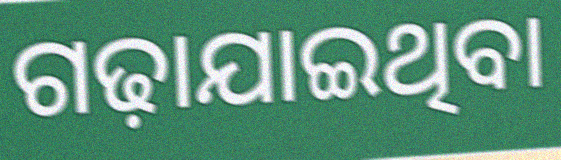
ଗଢ଼ାଯାଇଥିବା